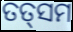
ତତ୍‍ସମ